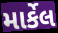
માર્કેલ